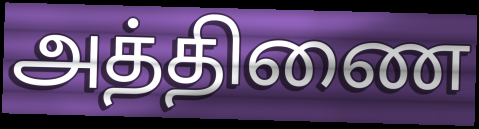
அத்திணை